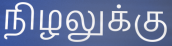
நிழலுக்கு